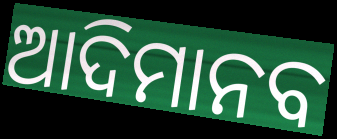
ଆଦିମାନବ